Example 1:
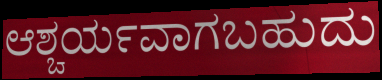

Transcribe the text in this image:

ಆಶ್ಚರ್ಯವಾಗಬಹುದು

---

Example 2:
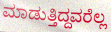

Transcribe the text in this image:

ಮಾಡುತ್ತಿದ್ದವರೆಲ್ಲ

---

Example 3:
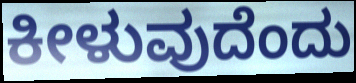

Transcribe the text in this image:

ಕೀಳುವುದೆಂದು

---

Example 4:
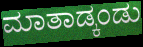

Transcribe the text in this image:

ಮಾತಾಡ್ಕಂಡು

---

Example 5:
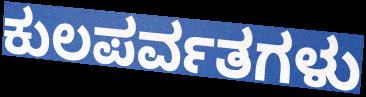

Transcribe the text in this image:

ಕುಲಪರ್ವತಗಳು